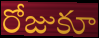
రోజుకూ